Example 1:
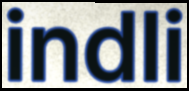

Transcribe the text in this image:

indli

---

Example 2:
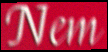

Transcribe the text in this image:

Nem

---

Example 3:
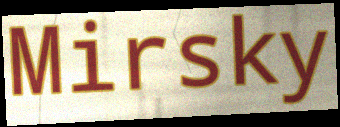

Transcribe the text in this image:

Mirsky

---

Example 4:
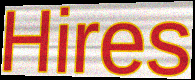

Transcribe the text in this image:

Hires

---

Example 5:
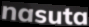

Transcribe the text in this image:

nasuta